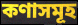
কণাসমূহ